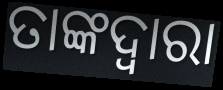
ତାଙ୍କଦ୍ଵାରା